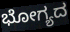
ಭೋಗ್ಯದ